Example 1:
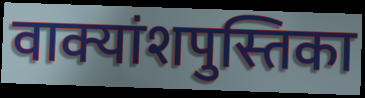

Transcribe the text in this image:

वाक्यांशपुस्तिका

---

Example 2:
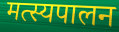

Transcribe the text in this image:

मत्स्यपालन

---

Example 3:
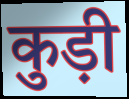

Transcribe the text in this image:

कुड़ी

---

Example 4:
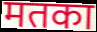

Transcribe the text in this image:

मतका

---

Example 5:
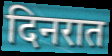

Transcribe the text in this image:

दिनरात